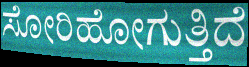
ಸೋರಿಹೋಗುತ್ತಿದೆ